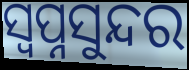
ସ୍ୱପ୍ନସୁନ୍ଦର